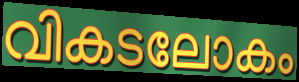
വികടലോകം